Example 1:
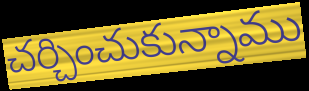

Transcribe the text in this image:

చర్చించుకున్నాము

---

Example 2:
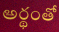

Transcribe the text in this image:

అర్థంతో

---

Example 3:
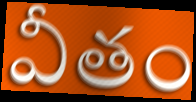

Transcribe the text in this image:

వీతం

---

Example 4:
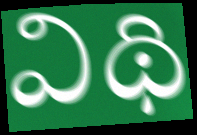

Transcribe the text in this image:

విథి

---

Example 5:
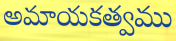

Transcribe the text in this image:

అమాయకత్వము